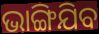
ଭାଙ୍ଗିଯିବ